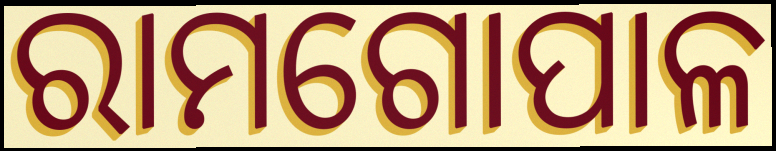
ରାମଗୋପାଳ